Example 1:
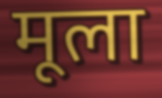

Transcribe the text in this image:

मूला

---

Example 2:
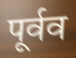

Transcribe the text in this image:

पूर्वव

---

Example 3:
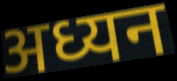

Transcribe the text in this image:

अध्यन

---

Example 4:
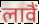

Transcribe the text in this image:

लावैं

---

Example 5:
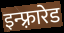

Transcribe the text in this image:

इन्फ़्रारेड